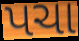
પચા